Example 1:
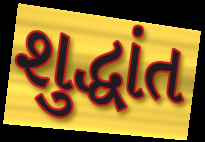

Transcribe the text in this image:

શુદ્ધાંત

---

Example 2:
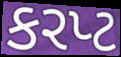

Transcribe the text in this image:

કરપ્ટ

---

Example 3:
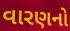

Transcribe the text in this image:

વારણનો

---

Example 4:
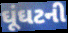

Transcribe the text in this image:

ઘૂંઘટની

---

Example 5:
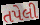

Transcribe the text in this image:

તપેલી